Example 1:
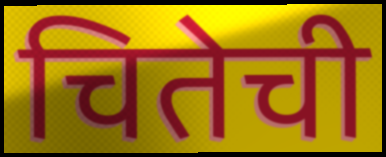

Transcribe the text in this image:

चितेची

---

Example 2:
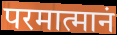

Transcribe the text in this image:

परमात्मानं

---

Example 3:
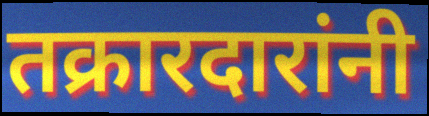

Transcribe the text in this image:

तक्रारदारांनी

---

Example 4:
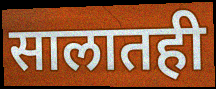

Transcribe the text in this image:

सालातही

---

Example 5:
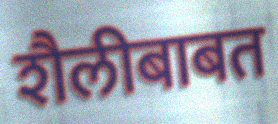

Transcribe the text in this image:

शैलीबाबत